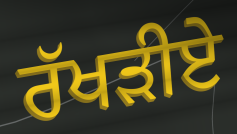
ਰੱਖੜੀਏ